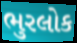
ભુરલોક